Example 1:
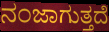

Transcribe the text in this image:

ನಂಜಾಗುತ್ತದೆ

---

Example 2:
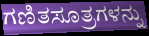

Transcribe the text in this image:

ಗಣಿತಸೂತ್ರಗಳನ್ನು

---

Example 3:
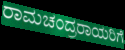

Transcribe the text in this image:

ರಾಮಚಂದ್ರರಾಯರಿಗೆ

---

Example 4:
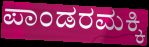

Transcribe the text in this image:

ಪಾಂಡರಮಕ್ಕಿ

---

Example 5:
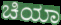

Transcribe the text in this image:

ಚಿಯಾ